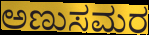
ಅಣುಸಮರ